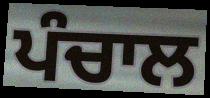
ਪੰਚਾਲ